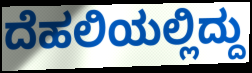
ದೆಹಲಿಯಲ್ಲಿದ್ದು